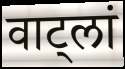
वाट्लां